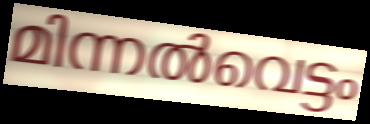
മിന്നൽവെട്ടം